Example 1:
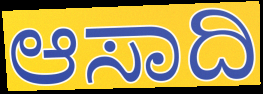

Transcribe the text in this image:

ಆಸಾದಿ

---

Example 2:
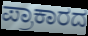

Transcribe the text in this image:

ಪ್ರಾಕಾರದ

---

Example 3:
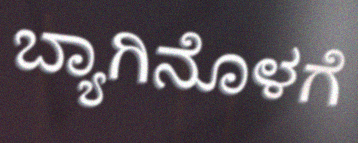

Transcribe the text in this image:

ಬ್ಯಾಗಿನೊಳಗೆ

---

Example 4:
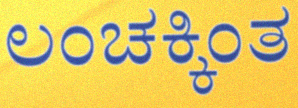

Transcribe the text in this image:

ಲಂಚಕ್ಕಿಂತ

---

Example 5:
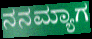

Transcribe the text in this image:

ನನಮ್ಯಾಗ